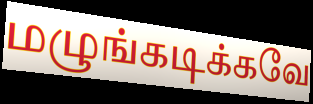
மழுங்கடிக்கவே